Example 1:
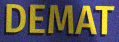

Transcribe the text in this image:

DEMAT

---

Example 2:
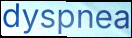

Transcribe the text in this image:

dyspnea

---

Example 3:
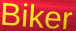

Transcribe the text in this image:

Biker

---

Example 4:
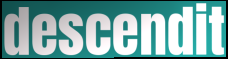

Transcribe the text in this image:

descendit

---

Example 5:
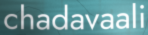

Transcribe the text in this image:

chadavaali